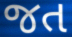
જત